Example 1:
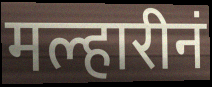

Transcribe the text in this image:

मल्हारीनं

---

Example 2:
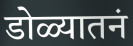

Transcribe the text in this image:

डोळ्यातनं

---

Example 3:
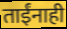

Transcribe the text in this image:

ताईंनाही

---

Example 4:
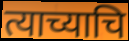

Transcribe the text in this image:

त्याच्याचि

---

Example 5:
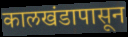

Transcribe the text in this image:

कालखंडापासून